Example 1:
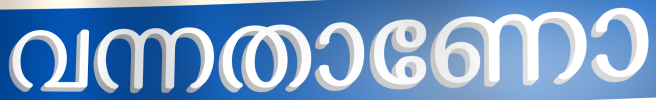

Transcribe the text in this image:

വന്നതാണോ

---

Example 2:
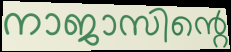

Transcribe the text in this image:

നാജാസിന്റെ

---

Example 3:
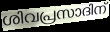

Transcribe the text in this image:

ശിവപ്രസാദിന്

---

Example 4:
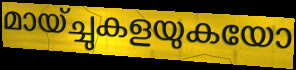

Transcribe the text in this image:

മായ്ച്ചുകളയുകയോ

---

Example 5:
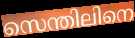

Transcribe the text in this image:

സെന്തിലിനെ